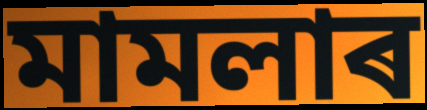
মামলাৰ